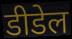
डीडेल